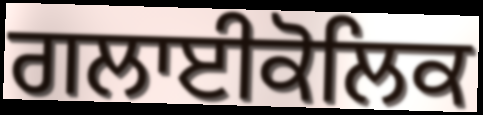
ਗਲਾਈਕੋਲਿਕ